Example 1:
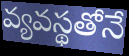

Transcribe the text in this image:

వ్యవస్థతోనే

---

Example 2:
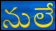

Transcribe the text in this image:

నులే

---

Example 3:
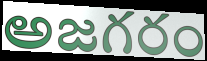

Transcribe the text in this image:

అజగరం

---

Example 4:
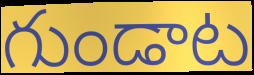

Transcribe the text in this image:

గుండాట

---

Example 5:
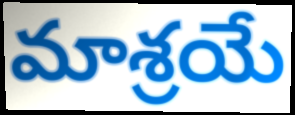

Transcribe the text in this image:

మాశ్రయే